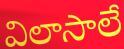
విలాసాలే